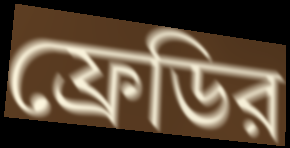
ফ্রেডির